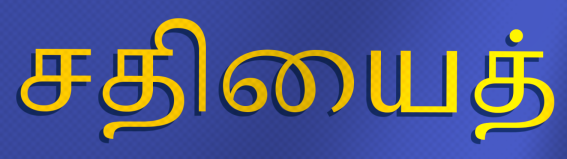
சதியைத்